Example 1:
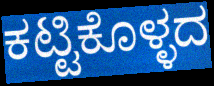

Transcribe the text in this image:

ಕಟ್ಟಿಕೊಳ್ಳದ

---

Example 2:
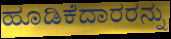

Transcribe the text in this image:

ಹೂಡಿಕೆದಾರರನ್ನು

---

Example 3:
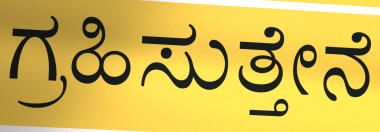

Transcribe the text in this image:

ಗ್ರಹಿಸುತ್ತೇನೆ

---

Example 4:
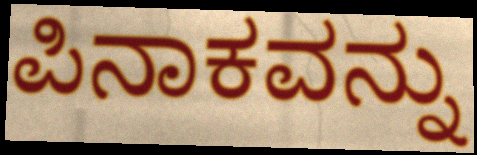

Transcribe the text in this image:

ಪಿನಾಕವನ್ನು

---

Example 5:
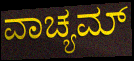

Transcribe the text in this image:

ವಾಚ್ಯಮ್